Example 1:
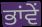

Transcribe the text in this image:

ਭਾਂਵੇਂ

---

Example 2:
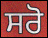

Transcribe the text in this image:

ਸਰੋ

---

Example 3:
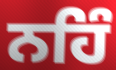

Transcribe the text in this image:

ਨਹਿੰ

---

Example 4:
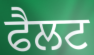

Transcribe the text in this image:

ਫੈਲਟ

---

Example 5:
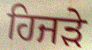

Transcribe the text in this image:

ਹਿਜੜੇ